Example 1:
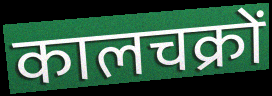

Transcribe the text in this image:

कालचक्रों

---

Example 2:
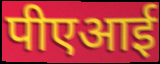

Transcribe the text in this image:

पीएआई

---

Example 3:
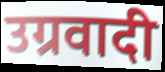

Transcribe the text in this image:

उग्रवादी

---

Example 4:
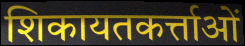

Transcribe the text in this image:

शिकायतकर्त्ताओं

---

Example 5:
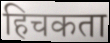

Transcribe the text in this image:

हिचकता